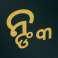
ନ୍ଙ୍କ